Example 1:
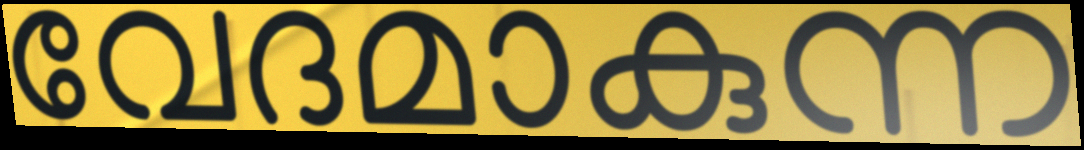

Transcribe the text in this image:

വേദമാകുന്ന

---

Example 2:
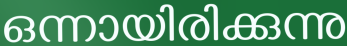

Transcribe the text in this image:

ഒന്നായിരിക്കുന്നു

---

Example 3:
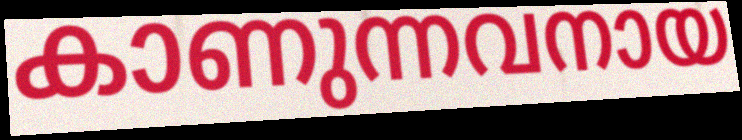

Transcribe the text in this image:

കാണുന്നവനായ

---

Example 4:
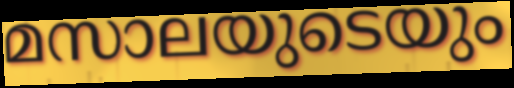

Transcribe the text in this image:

മസാലയുടെയും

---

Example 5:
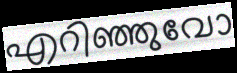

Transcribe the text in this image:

എറിഞ്ഞുവോ